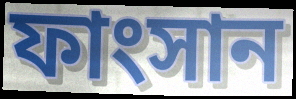
ফাংসান